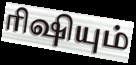
ரிஷியும்